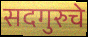
सदगुरुचे